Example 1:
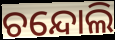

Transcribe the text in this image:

ଚନ୍ଦୋଲି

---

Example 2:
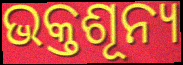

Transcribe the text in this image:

ଭକ୍ତଶୂନ୍ୟ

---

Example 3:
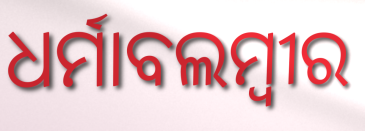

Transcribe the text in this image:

ଧର୍ମାବଲମ୍ବୀର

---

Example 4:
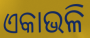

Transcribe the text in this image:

ଏକାଭଳି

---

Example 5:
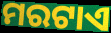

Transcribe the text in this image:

ମରଟାଏ